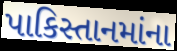
પાકિસ્તાનમાંના